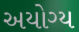
અયોગ્ય